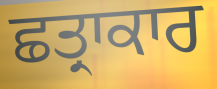
ਛਤ੍ਰਾਕਾਰ